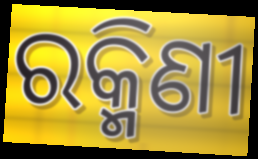
ରକ୍ମିଣୀ